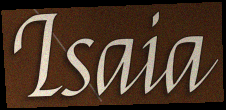
Isaia